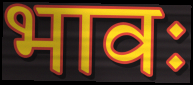
भावः